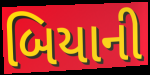
બિયાની